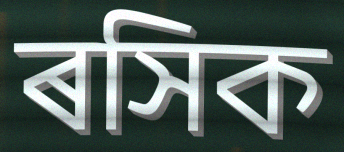
ৰসিক